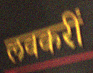
लवकरीं